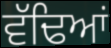
ਵੱਢਿਆਂ